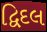
દ્વિદલ